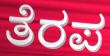
ತೆರಪ